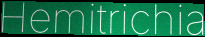
Hemitrichia